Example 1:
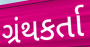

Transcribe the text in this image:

ગ્રંથકર્તા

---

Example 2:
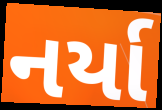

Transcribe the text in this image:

નર્યા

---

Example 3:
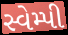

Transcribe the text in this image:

સ્વેમ્પી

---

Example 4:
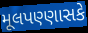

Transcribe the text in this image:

મૂલપણ્ણાસકે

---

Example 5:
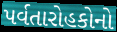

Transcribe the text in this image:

પર્વતારોહકોનો